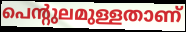
പെന്റുലമുള്ളതാണ്